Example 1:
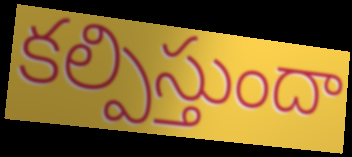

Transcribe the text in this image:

కల్పిస్తుందా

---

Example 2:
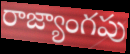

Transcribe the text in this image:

రాజ్యాంగపు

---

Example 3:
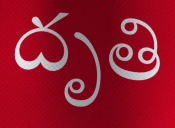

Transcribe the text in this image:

దృతి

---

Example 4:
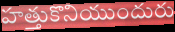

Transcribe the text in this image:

హత్తుకొనియుందురు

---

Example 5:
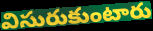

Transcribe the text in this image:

విసురుకుంటారు